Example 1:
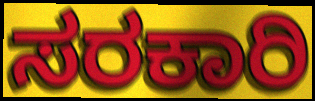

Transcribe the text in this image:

ಸರಕಾರಿ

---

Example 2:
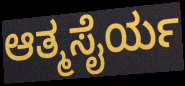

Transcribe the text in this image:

ಆತ್ಮಸೈರ್ಯ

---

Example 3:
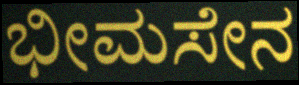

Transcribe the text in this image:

ಭೀಮಸೇನ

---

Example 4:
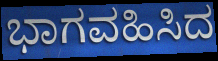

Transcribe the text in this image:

ಭಾಗವಹಿಸಿದ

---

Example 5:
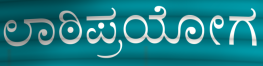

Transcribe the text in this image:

ಲಾಠಿಪ್ರಯೋಗ